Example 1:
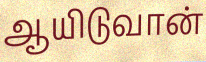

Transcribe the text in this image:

ஆயிடுவான்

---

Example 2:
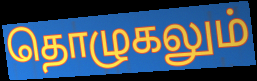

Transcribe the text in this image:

தொழுகலும்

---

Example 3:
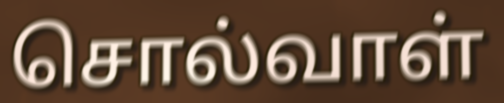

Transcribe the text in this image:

சொல்வாள்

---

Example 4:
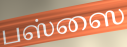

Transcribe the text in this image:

பஸ்ஸை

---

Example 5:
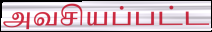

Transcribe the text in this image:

அவசியப்பட்ட